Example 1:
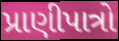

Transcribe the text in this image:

પ્રાણીપાત્રો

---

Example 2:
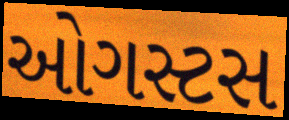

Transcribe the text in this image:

ઓગસ્ટસ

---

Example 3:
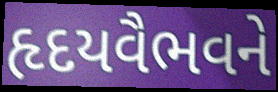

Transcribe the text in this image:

હૃદયવૈભવને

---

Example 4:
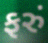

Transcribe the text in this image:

ફરું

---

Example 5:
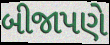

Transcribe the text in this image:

બીજાપણે